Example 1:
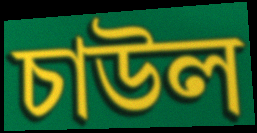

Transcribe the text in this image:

চাউল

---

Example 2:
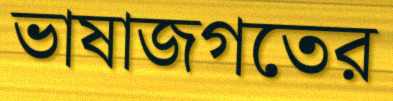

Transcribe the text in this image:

ভাষাজগতের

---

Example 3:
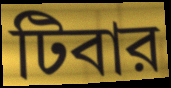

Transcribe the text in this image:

টিবার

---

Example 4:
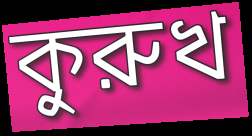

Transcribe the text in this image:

কুরুখ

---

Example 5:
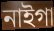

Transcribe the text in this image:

নাইগা